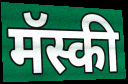
मॅस्की